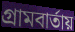
গ্রামবার্তায়